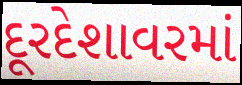
દૂરદેશાવરમાં